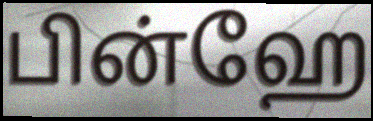
பின்ஹே